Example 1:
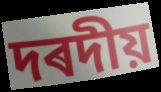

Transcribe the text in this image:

দৰদীয়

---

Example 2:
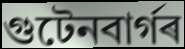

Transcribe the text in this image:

গুটেনবাৰ্গৰ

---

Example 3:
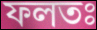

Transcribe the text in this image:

ফলতঃ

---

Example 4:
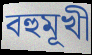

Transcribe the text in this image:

বহুমূখী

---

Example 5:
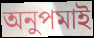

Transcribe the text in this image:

অনুপমাই